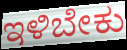
ಇಳಿಬೇಕು